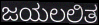
ಜಯಲಲಿತ